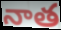
నాత